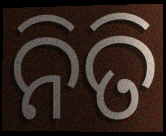
ନିତି